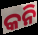
କନି